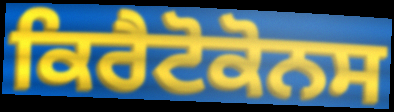
ਕਿਰੈਟੋਕੋਨਸ